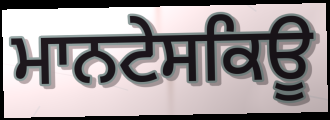
ਮਾਨਟੇਸਕਿਊ